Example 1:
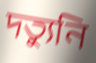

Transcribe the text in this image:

দত্যুনি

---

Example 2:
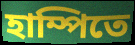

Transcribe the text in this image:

হাম্পিতে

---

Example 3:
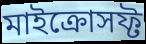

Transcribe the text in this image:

মাইক্রোসফ্ট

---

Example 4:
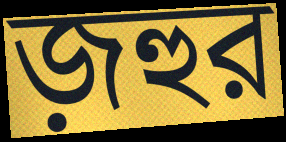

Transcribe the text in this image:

জ়হুর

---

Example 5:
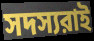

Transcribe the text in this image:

সদস্যরাই